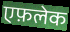
एफ़लेक